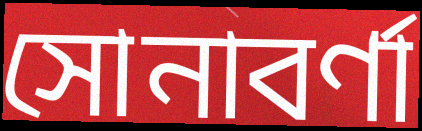
সোনাবর্ণা